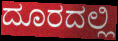
ದೂರದಲ್ಲಿ